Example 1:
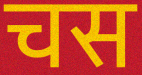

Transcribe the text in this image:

चस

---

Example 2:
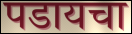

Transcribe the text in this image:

पडायचा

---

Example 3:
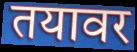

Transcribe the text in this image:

तयावर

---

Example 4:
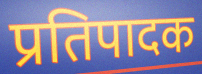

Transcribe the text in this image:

प्रतिपादक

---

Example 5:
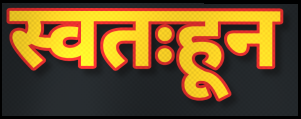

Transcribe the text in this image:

स्वतःहून